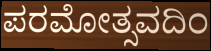
ಪರಮೋತ್ಸವದಿಂ